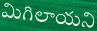
మిగిలాయని